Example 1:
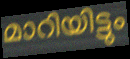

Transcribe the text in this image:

മാറിയിട്ടും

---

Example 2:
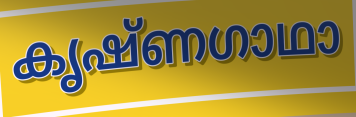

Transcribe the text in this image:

കൃഷ്ണഗാഥാ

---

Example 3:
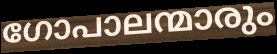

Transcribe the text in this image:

ഗോപാലന്മാരും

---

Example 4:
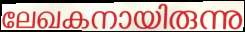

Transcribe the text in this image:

ലേഖകനായിരുന്നു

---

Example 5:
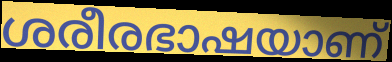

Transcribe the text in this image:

ശരീരഭാഷയാണ്